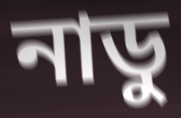
নাডু